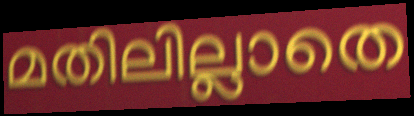
മതിലില്ലാതെ